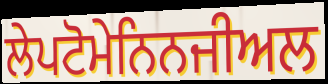
ਲੇਪਟੋਮੇਨਿਨਜੀਅਲ